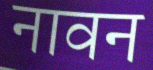
नावन